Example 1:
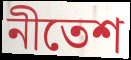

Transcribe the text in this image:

নীতেশ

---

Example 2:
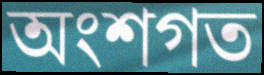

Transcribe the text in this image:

অংশগত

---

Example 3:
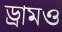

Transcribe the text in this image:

ড্রামও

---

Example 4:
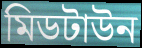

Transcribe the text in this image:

মিডটাউন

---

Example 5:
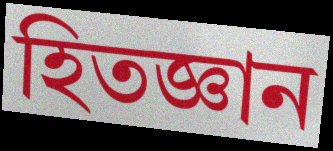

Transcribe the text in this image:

হিতজ্ঞান